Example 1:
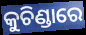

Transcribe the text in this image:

କୁଚିଣ୍ଡାରେ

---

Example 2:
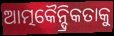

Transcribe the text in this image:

ଆତ୍ମକୈନ୍ଦ୍ରିକତାକୁ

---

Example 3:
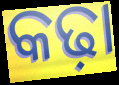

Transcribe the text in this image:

କଢ଼ା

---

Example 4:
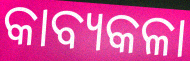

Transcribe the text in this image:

କାବ୍ୟକଳା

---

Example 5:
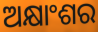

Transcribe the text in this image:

ଅକ୍ଷାଂଶର